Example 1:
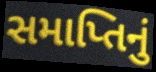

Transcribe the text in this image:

સમાપ્તિનું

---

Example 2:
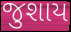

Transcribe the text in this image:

જુશાય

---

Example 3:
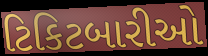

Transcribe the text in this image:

ટિકિટબારીઓ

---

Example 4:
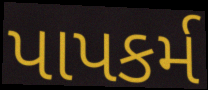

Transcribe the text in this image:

પાપકર્મ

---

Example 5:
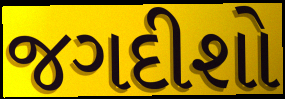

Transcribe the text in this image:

જગદીશો